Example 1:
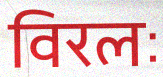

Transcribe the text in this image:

विरलः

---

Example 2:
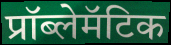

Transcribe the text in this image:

प्रॉब्लेमॅटिक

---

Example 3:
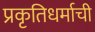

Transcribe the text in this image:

प्रकृतिधर्माची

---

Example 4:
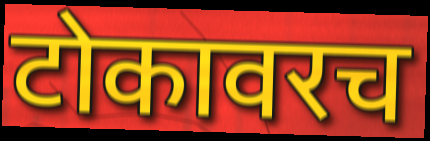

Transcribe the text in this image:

टोकावरच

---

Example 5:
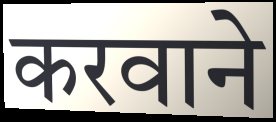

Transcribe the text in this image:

करवाने